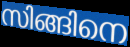
സിങ്ങിനെ